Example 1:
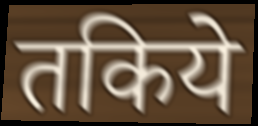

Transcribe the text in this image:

तकिये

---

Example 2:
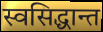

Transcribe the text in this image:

स्वसिद्धान्त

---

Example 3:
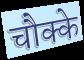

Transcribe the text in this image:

चौक्के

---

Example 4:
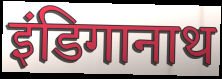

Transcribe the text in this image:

इंडिगानाथ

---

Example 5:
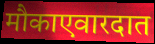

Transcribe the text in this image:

मौकाएवारदात